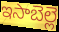
ఇసాబెల్లె